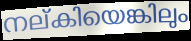
നല്‌കിയെങ്കിലും